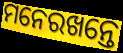
ମନେରଖନ୍ତେ